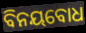
ବିନୟବୋଧ